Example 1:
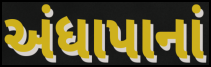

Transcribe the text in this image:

અંધાપાનાં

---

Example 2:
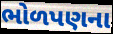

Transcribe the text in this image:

ભોળપણના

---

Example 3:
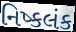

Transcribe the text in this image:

નિષ્કલંક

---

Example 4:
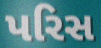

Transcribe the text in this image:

પરિસ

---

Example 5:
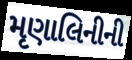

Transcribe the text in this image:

મૃણાલિનીની